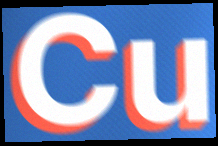
Cu